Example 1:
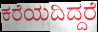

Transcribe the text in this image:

ಕರೆಯದಿದ್ದರೆ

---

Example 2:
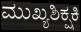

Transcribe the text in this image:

ಮುಖ್ಯಶಿಕ್ಷಕಿ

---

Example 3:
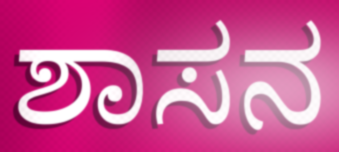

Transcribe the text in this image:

ಶಾಸನ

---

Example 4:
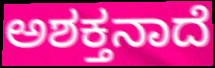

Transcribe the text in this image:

ಅಶಕ್ತನಾದೆ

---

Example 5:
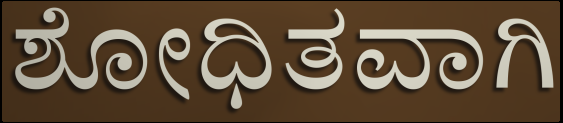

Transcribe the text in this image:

ಶೋಧಿತವಾಗಿ